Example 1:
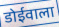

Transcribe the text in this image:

डोईवाला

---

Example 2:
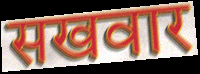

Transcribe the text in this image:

सखवार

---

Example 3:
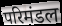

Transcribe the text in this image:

परिमंडल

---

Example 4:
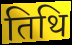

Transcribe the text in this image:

तिथि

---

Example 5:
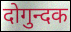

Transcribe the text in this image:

दोगुन्दक